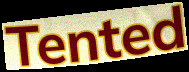
Tented